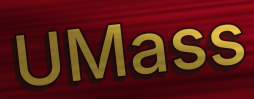
UMass